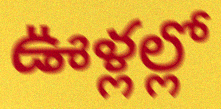
ఊళ్లల్లో